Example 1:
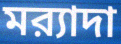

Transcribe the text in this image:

মর‍্যাদা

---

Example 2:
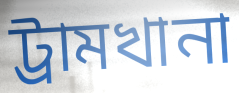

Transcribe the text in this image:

ট্রামখানা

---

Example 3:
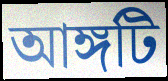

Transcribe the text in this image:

আঙ্গটি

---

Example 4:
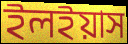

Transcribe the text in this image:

ইলইয়াস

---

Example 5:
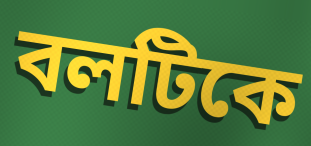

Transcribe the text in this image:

বলটিকে